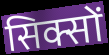
सिक्सों